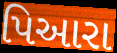
પિઆરા